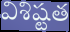
విశిష్టత